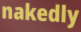
nakedly